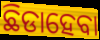
ଛିଡାହେବା